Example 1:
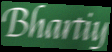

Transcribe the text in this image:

Bhartiy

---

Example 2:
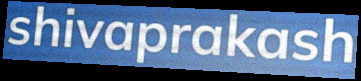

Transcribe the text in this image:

shivaprakash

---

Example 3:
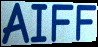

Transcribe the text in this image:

AIFF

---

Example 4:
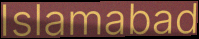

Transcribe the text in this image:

Islamabad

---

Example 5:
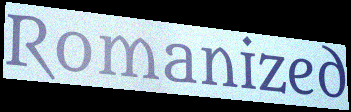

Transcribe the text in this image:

Romanized